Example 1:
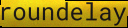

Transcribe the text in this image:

roundelay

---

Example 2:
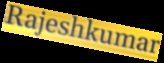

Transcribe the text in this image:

Rajeshkumar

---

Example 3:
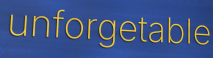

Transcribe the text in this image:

unforgetable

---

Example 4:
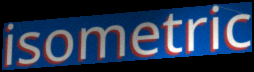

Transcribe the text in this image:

isometric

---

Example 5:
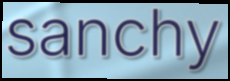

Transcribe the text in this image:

sanchy